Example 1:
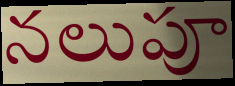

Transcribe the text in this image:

నలుపూ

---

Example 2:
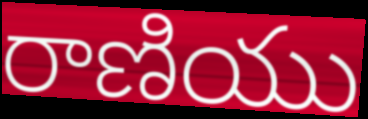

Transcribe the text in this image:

రాణియు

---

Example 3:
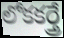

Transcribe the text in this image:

లోకకర్త్రే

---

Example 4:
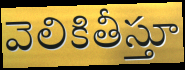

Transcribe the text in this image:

వెలికితీస్తూ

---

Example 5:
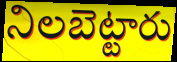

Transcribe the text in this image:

నిలబెట్టారు